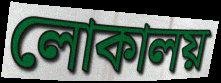
লোকালয়